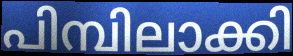
പിമ്പിലാക്കി